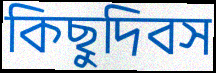
কিছুদিবস